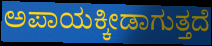
ಅಪಾಯಕ್ಕೀಡಾಗುತ್ತದೆ